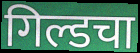
गिल्डचा